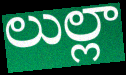
లుల్లా